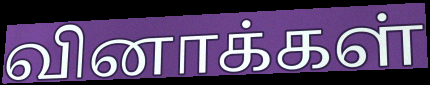
வினாக்கள்